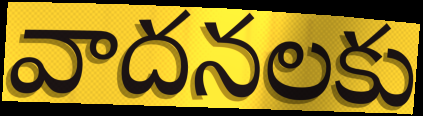
వాదనలకు